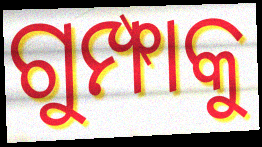
ଗୁମ୍ଫାକୁ